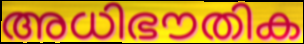
അധിഭൗതിക